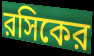
রসিকের